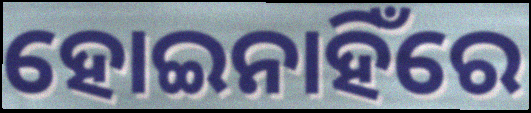
ହୋଇନାହିଁରେ